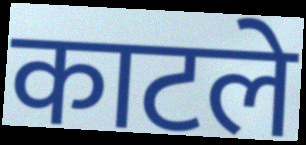
काटले